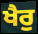
ਖੈਰੁ